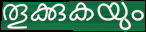
തൂക്കുകയും